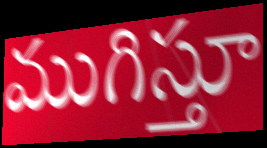
ముగిస్తూ